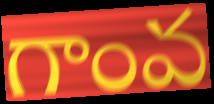
గాంవ